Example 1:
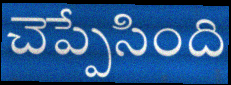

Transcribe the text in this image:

చెప్పేసింది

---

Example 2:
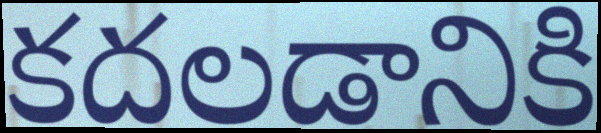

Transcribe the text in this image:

కదలడానికి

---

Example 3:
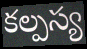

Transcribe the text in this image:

కల్పస్య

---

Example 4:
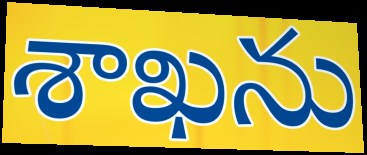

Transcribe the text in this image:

శాఖను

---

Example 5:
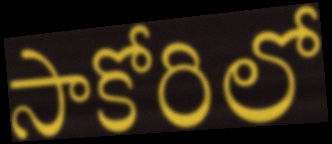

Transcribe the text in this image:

సాకోరిలో